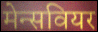
मेन्सवियर